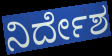
ನಿರ್ದೇಶ